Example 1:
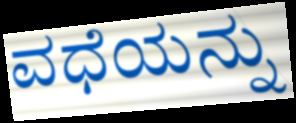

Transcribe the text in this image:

ವಧೆಯನ್ನು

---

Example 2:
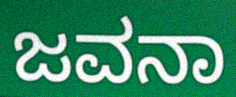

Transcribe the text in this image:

ಜವನಾ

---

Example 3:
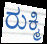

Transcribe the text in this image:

ರುಕ್ಮಿ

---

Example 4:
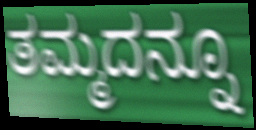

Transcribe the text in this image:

ತಮ್ಮದನ್ನೂ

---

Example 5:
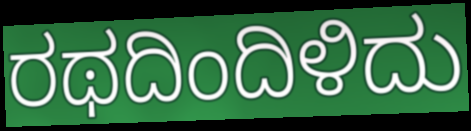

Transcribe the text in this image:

ರಥದಿಂದಿಳಿದು